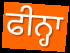
ਫੀਨ੍ਹਾ